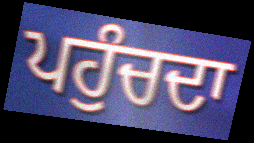
ਪਹੁੰਚਦਾ